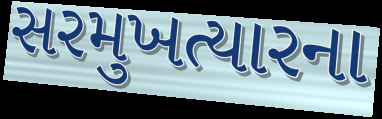
સરમુખત્યારના